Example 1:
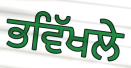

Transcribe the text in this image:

ਭਵਿੱਖਲੇ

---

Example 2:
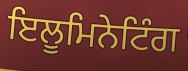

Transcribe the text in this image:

ਇਲੂਮਿਨੇਟਿੰਗ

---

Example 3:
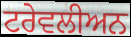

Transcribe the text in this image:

ਟਰੇਵਲੀਅਨ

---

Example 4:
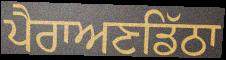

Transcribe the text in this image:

ਪੈਰਾਅਣਡਿੱਠਾ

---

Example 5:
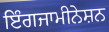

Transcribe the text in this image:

ਇੰਗਜਾਮੀਨੇਸ਼ਨ